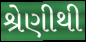
શ્રેણીથી